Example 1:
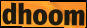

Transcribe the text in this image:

dhoom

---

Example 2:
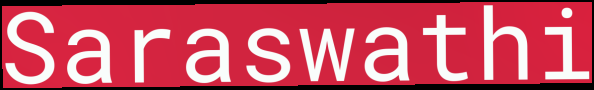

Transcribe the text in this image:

Saraswathi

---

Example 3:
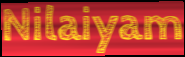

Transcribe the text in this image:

Nilaiyam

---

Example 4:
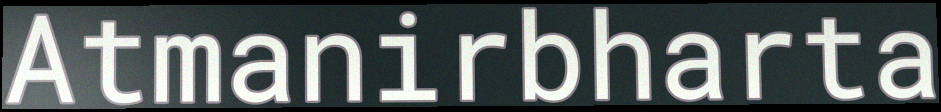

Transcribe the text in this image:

Atmanirbharta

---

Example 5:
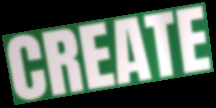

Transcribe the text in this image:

CREATE